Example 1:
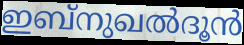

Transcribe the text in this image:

ഇബ്നുഖൽദൂൻ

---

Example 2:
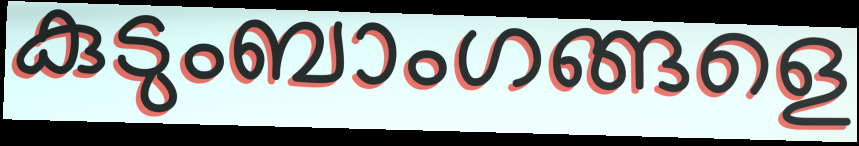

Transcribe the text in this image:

കുടുംബാംഗങ്ങളെ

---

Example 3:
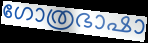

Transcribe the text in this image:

ഗോത്രഭാഷാ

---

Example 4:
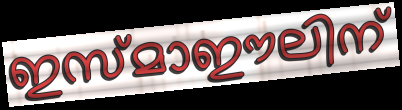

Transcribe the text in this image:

ഇസ്മാഈലിന്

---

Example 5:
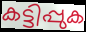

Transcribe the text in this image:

കട്ടിപ്പുക